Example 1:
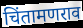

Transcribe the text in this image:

चिंतामणराव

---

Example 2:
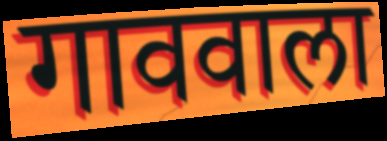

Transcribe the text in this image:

गाववाला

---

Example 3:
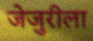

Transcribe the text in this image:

जेजुरीला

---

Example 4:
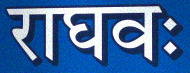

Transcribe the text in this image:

राघवः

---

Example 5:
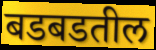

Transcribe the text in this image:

बडबडतील